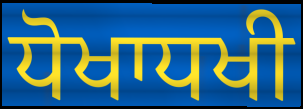
ਧੋਖਾਧਖੀ